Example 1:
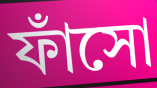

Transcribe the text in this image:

ফাঁসো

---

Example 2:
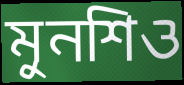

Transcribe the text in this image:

মুনশিও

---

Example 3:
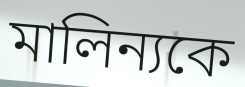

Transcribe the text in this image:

মালিন্যকে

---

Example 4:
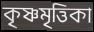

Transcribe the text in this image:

কৃষ্ণমৃত্তিকা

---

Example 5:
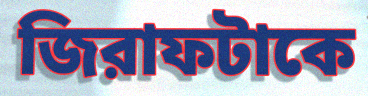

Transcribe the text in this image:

জিরাফটাকে